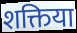
शक्तिया